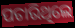
ପଚାରିଥିଲେ